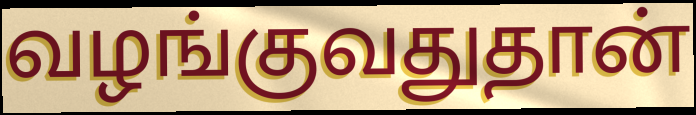
வழங்குவதுதான்